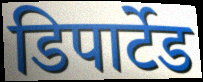
डिपार्टेड